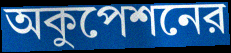
অকুপেশনের